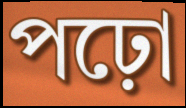
পঢ়ো